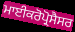
ਮਾਈਕਰੋਪ੍ਰੋਸੈਸਰ